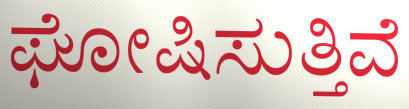
ಘೋಷಿಸುತ್ತಿವೆ